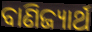
ବାଣିଜ୍ୟାର୍ଥ